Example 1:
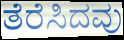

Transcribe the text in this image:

ತೆರೆಸಿದವು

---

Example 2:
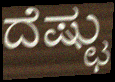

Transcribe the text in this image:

ದೆಷ್ಟು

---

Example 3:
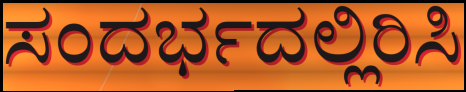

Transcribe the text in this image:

ಸಂದರ್ಭದಲ್ಲಿರಿಸಿ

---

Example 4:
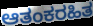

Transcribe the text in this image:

ಆತಂಕರಹಿತ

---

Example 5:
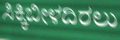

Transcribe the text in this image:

ಸಿಕ್ಕಿಬೀಳದಿರಲು